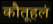
कौतूहलं